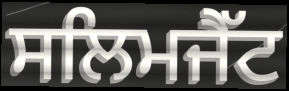
ਸਲਿਮਜੈੱਟ